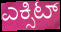
ಎಕ್ಸಿಟ್